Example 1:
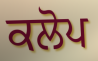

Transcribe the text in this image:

ਕਲੋਪ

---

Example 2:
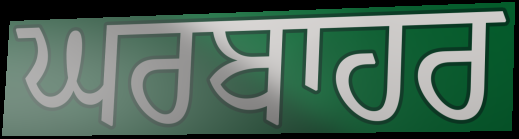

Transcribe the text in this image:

ਘਰਬਾਹਰ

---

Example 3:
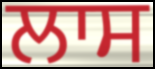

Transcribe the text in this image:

ਲਾਸ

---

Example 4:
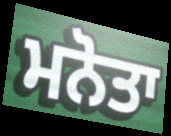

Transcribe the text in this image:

ਮਨੋਤਾ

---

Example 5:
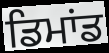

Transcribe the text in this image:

ਡਿਮਾਂਡ